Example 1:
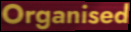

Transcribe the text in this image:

Organised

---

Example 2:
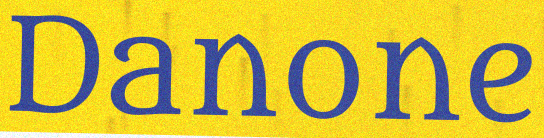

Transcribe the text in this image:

Danone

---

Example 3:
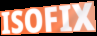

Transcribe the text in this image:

ISOFIX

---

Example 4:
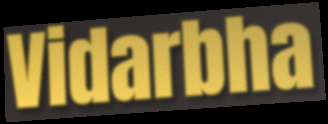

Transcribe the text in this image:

Vidarbha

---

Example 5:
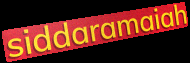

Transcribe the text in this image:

siddaramaiah